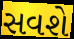
સવશે